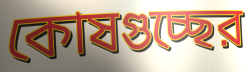
কোষগুচ্ছের